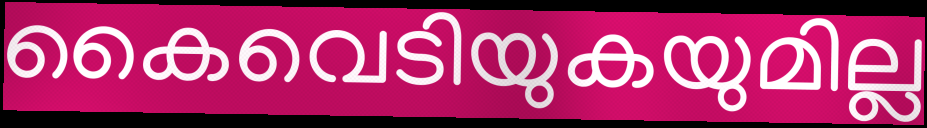
കൈവെടിയുകയുമില്ല